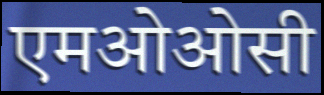
एमओओसी